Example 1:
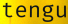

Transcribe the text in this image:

tengu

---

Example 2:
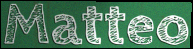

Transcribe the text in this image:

Matteo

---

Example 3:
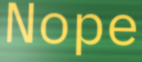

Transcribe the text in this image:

Nope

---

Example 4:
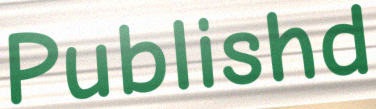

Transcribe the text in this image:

Publishd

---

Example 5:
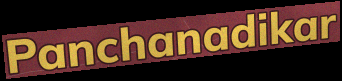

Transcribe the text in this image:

Panchanadikar